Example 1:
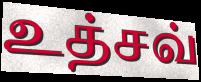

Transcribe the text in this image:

உத்சவ்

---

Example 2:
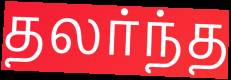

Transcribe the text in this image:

தலர்ந்த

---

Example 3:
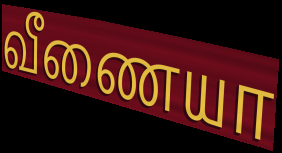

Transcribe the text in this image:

வீணையா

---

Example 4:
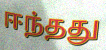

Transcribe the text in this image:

ஈந்தது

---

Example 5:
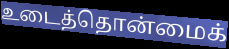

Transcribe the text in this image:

உடைத்தொன்மைக்